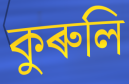
কুৰুলি